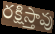
రక్షిస్తావు